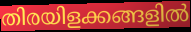
തിരയിളക്കങ്ങളിൽ